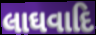
લાઘવાદિ